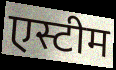
एस्टीम